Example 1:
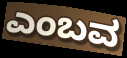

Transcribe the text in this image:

ಎಂಬವ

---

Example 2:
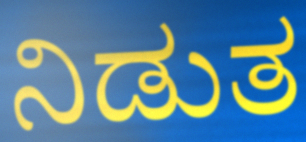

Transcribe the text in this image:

ನಿಡುತ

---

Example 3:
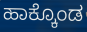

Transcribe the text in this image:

ಹಾಕ್ಕೊಂಡ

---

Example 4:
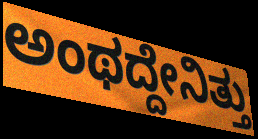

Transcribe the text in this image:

ಅಂಥದ್ದೇನಿತ್ತು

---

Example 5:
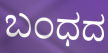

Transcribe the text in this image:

ಬಂಧದ